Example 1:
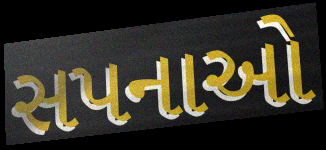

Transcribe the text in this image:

સપનાઓ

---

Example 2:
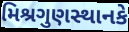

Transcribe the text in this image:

મિશ્રગુણસ્થાનકે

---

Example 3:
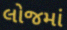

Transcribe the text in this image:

લોજમાં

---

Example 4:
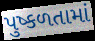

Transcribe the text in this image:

પુષ્કળતામાં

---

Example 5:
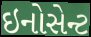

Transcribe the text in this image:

ઇનોસેન્ટ